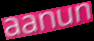
aanun